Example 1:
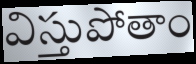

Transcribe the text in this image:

విస్తుపోతాం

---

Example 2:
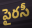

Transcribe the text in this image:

పైరసీ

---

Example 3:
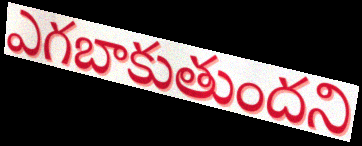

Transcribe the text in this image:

ఎగబాకుతుందని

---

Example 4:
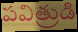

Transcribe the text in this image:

పవిత్రుడి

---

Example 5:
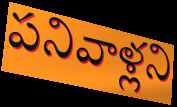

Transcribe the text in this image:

పనివాళ్లని